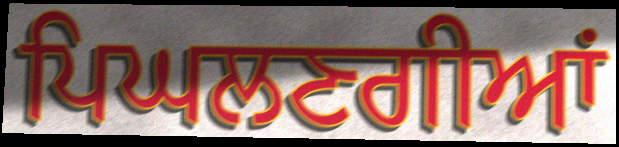
ਪਿਘਲਣਗੀਆਂ